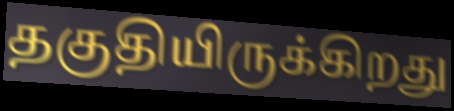
தகுதியிருக்கிறது